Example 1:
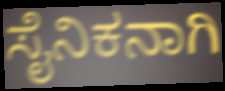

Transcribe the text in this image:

ಸೈನಿಕನಾಗಿ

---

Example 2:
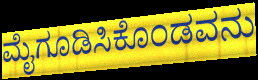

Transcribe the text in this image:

ಮೈಗೂಡಿಸಿಕೊಂಡವನು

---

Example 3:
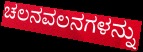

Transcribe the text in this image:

ಚಲನವಲನಗಳನ್ನು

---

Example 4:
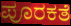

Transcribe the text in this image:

ಪೂರಕತೆ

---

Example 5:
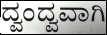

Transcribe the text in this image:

ದ್ವಂದ್ವವಾಗಿ